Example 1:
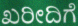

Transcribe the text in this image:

ಖರೀದಿಗೆ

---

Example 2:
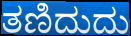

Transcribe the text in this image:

ತಣಿದುದು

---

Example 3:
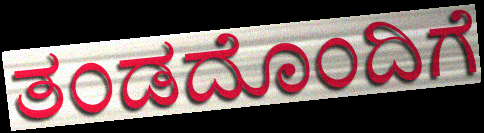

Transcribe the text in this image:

ತಂಡದೊಂದಿಗೆ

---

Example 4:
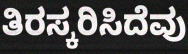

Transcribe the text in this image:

ತಿರಸ್ಕರಿಸಿದೆವು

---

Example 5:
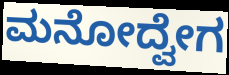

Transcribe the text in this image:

ಮನೋದ್ವೇಗ